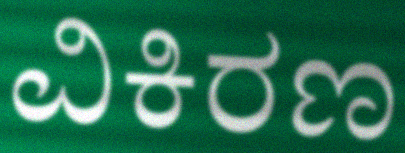
ವಿಕಿರಣ